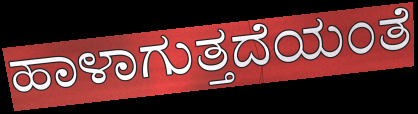
ಹಾಳಾಗುತ್ತದೆಯಂತೆ